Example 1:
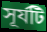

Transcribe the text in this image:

সূর্যটি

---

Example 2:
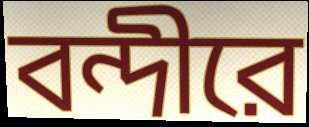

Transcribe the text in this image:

বন্দীরে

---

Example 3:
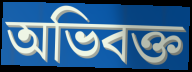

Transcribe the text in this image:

অভিবক্ত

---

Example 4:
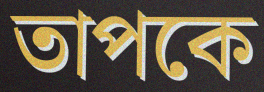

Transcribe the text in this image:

তাপকে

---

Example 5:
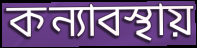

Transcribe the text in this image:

কন্যাবস্থায়